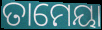
ତାମେୟା